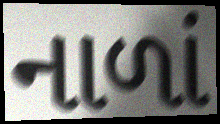
નાળાં